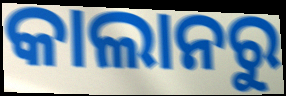
କାଲାନରୁ